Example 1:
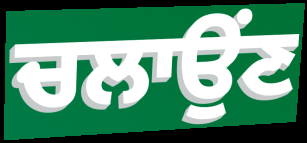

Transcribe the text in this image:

ਚਲਾਉਂਣ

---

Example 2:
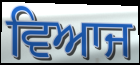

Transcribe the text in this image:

ਵਿਆਜ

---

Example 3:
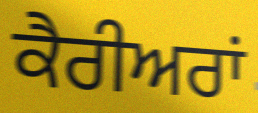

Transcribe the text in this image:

ਕੈਰੀਅਰਾਂ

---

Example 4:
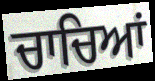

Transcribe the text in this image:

ਚਾਚਿਆਂ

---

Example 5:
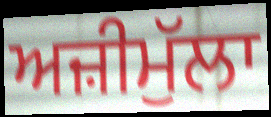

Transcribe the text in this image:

ਅਜ਼ੀਮੁੱਲਾ